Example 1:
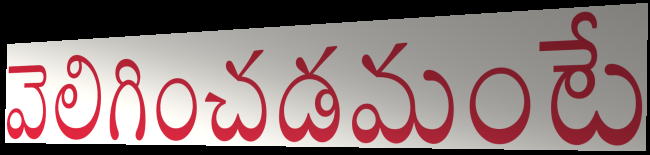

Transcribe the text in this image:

వెలిగించడమంటే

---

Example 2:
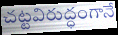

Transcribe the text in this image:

చట్టవిరుద్ధంగానే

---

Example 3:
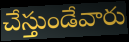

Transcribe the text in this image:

చేస్తుండేవారు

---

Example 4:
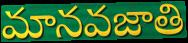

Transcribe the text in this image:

మానవజాతి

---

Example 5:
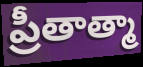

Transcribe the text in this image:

ప్రీతాత్మా